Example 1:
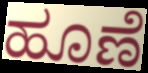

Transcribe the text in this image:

ಹೂಣೆ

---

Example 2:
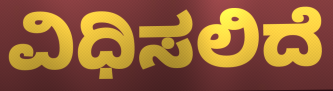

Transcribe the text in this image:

ವಿಧಿಸಲಿದೆ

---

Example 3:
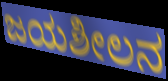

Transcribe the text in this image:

ಜಯಶೀಲನ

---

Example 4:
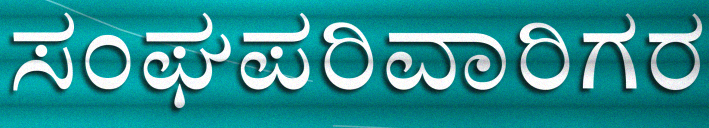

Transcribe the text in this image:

ಸಂಘಪರಿವಾರಿಗರ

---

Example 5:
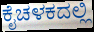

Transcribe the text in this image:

ಕೈಚಳಕದಲ್ಲಿ